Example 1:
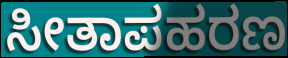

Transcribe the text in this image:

ಸೀತಾಪಹರಣ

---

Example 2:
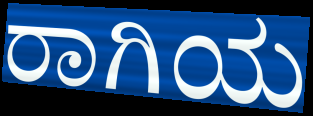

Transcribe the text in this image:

ರಾಗಿಯ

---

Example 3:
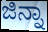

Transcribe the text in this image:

ಜಿನ್ನಾ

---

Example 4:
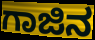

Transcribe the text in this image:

ಗಾಜಿನ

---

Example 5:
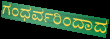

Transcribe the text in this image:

ಗಂಧರ್ವರಿಂದಾದ